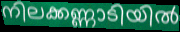
നിലക്കണ്ണാടിയിൽ